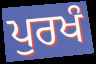
ਪੁਰਖੰ